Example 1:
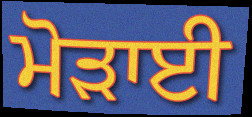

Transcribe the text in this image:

ਮੋੜਾਈ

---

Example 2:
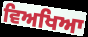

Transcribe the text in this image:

ਵਿਅਖਿਆ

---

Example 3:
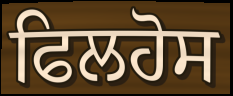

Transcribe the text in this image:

ਫਿਲਹੋਸ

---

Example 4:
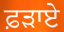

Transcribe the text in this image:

ਫ਼ੜਾਏ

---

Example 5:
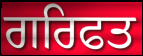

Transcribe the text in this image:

ਗਰਿਫਤ